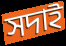
সদাই